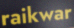
raikwar